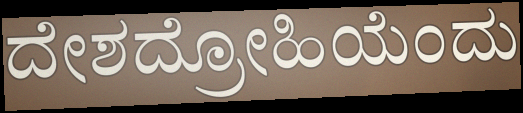
ದೇಶದ್ರೋಹಿಯೆಂದು